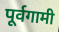
पूर्वगामी